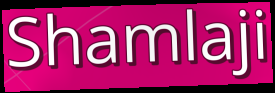
Shamlaji